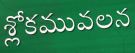
శ్లోకమువలన